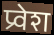
प्र्वेश